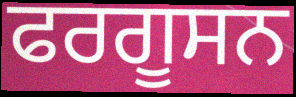
ਫਰਗੂਸਨ